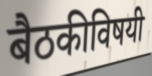
बैठकीविषयी